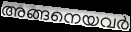
അങ്ങനെയവർ